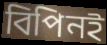
বিপিনই